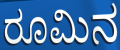
ರೂಮಿನ